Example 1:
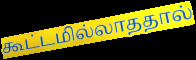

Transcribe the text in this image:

கூட்டமில்லாததால்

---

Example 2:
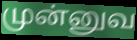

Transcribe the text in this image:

முன்னுவ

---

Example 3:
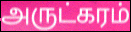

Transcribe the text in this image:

அருட்கரம்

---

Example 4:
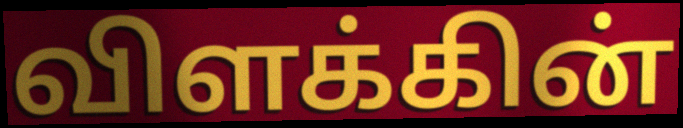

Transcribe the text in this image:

விளக்கின்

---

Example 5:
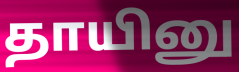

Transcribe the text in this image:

தாயினு